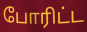
போரிட்ட